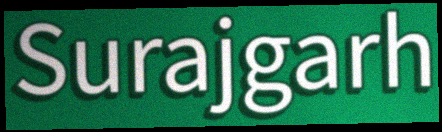
Surajgarh